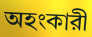
অহংকারী